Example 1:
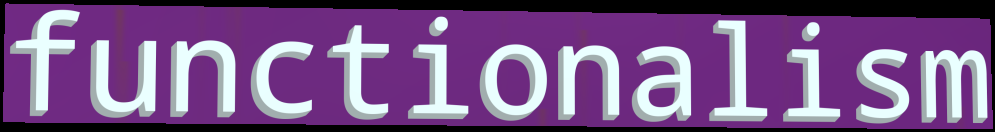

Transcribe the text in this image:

functionalism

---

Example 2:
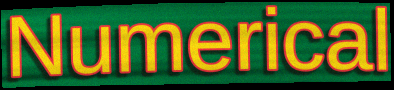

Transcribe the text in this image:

Numerical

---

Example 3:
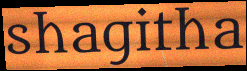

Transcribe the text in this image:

shagitha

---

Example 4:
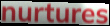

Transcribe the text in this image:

nurtures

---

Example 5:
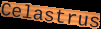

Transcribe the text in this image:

Celastrus